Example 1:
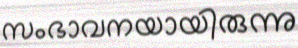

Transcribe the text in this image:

സംഭാവനയായിരുന്നു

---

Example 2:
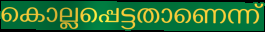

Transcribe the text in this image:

കൊല്ലപ്പെട്ടതാണെന്ന്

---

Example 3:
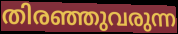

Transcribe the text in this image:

തിരഞ്ഞുവരുന്ന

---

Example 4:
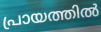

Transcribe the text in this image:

പ്രായത്തിൽ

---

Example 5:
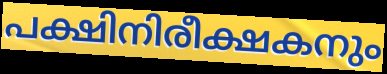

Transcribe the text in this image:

പക്ഷിനിരീക്ഷകനും